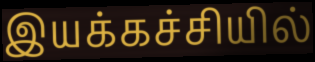
இயக்கச்சியில்